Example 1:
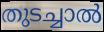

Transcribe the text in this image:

തുടച്ചാൽ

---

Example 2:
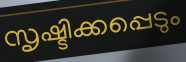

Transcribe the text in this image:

സൃഷ്ടിക്കപ്പെടും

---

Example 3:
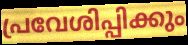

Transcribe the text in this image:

പ്രവേശിപ്പിക്കും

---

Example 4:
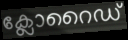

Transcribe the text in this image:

ക്ലോറൈഡ്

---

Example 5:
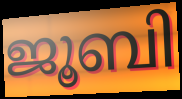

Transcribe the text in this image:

ജൂബി